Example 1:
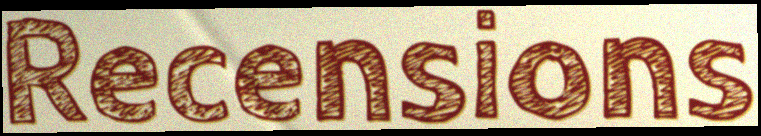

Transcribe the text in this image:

Recensions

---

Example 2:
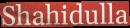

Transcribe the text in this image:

Shahidulla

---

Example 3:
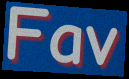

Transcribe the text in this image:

Fav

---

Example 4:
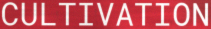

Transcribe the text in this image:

CULTIVATION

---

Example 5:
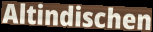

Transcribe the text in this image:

Altindischen